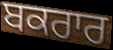
ਬਕਰਾਰ